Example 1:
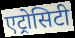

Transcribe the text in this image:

एट्रोसिटी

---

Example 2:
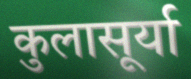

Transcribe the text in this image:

कुलासूर्या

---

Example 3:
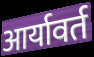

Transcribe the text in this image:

आर्यावर्त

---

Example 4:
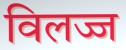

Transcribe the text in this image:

विलज्ज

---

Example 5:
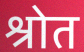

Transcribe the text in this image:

श्रोत